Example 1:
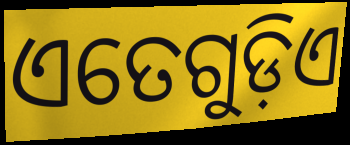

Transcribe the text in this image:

ଏତେଗୁଡ଼ିଏ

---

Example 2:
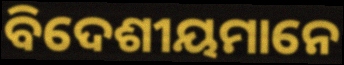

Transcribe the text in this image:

ବିଦେଶୀୟମାନେ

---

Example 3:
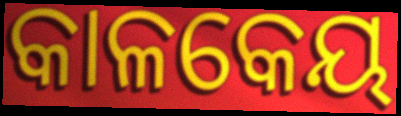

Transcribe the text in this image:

କାଳକେୟ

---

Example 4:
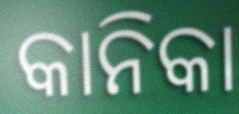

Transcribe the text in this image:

କାନିକା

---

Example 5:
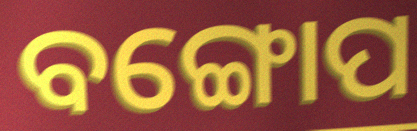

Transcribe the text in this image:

ବଙ୍ଗୋପ